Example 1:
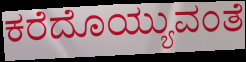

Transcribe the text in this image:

ಕರೆದೊಯ್ಯುವಂತೆ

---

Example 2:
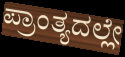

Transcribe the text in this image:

ಪ್ರಾಂತ್ಯದಲ್ಲೇ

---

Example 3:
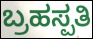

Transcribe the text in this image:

ಬ್ರಹಸ್ಪತಿ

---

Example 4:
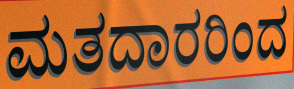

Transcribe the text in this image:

ಮತದಾರರಿಂದ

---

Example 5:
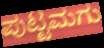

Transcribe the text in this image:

ಪುಟ್ಟಮಗು